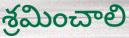
శ్రమించాలి